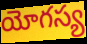
యోగస్య